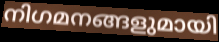
നിഗമനങ്ങളുമായി